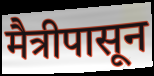
मैत्रीपासून